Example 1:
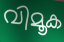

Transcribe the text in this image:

വിമൂക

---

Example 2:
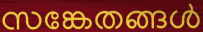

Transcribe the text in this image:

സങ്കേതങ്ങൾ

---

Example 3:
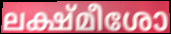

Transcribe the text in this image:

ലക്ഷ്മീശോ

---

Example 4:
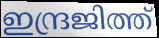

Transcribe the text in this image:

ഇന്ദ്രജിത്ത്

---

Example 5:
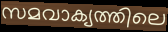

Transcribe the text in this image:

സമവാക്യത്തിലെ